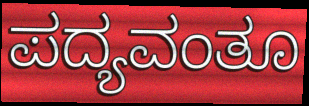
ಪದ್ಯವಂತೂ